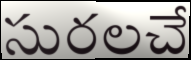
సురలచే